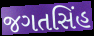
જગતસિંહ